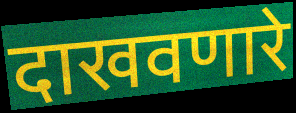
दाखवणारे